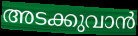
അടക്കുവാൻ